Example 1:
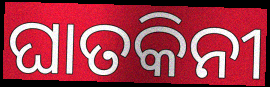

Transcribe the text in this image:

ଘାତକିନୀ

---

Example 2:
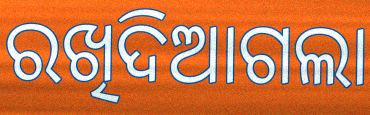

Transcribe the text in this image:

ରଖିଦିଆଗଲା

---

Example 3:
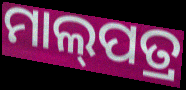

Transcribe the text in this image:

ମାଲ୍‌ପତ୍ର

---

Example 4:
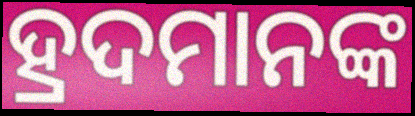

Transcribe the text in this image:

ହ୍ରଦମାନଙ୍କ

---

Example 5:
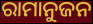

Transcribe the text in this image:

ରାମାନୁଜନ